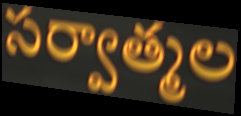
సర్వాత్మల